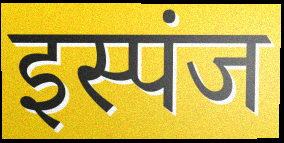
इस्पंज